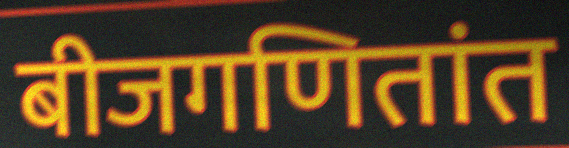
बीजगणितांत